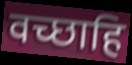
वच्छाहि